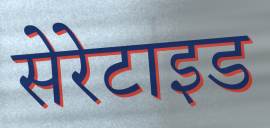
सेरेटाइड